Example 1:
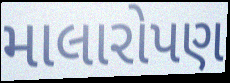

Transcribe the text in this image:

માલારોપણ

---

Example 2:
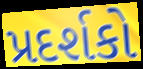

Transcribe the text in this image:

પ્રદર્શકો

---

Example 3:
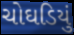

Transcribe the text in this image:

ચોઘડિયું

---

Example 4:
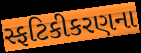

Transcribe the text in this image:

સ્ફટિકીકરણના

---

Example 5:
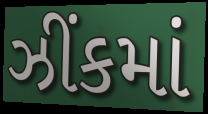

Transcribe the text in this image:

ઝીંકમાં